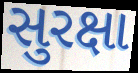
સુરક્ષા